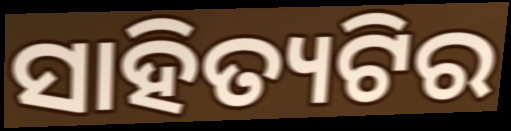
ସାହିତ୍ୟଟିର